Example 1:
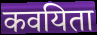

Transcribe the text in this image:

कवयिता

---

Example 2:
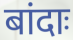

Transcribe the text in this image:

बांदाः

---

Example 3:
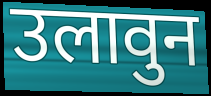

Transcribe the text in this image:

उलावुन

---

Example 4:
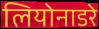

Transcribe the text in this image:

लियोनाडरे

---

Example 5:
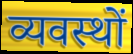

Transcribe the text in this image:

व्यवस्थों